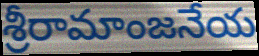
శ్రీరామాంజనేయ